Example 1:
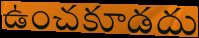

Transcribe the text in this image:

ఉంచకూడదు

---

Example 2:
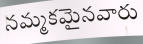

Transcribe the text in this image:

నమ్మకమైనవారు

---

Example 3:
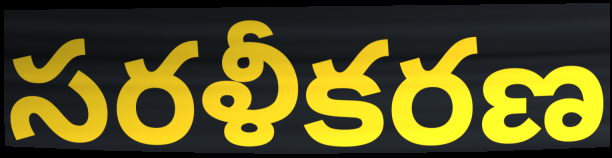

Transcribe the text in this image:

సరళీకరణ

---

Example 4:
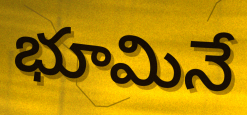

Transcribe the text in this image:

భూమినే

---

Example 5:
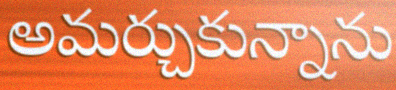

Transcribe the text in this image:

అమర్చుకున్నాను